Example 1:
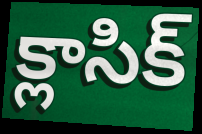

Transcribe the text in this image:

క్లాసిక్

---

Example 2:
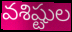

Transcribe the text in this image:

వశిష్టుల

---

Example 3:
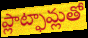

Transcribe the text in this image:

ప్లాట్ఫామ్లతో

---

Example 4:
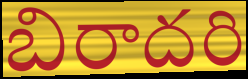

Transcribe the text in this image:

బిరాదరి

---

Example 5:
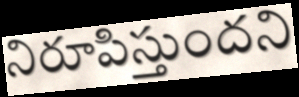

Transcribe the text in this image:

నిరూపిస్తుందని